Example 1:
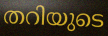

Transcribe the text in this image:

തറിയുടെ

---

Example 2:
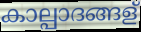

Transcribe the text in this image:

കാല്പാദങ്ങള്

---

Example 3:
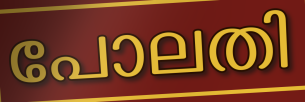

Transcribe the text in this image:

പോലതി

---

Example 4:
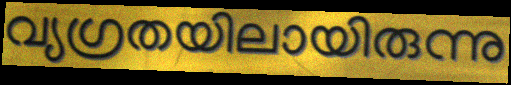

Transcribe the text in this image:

വ്യഗ്രതയിലായിരുന്നു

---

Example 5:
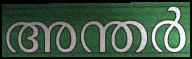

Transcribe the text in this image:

അന്തർ